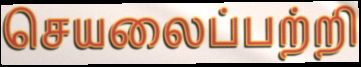
செயலைப்பற்றி